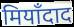
मियाँदाद